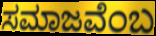
ಸಮಾಜವೆಂಬ